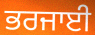
ਭਰਜਾਈ